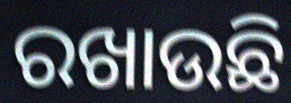
ରଖାଉଛି